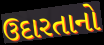
ઉદારતાનો